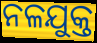
ନଳଯୁକ୍ତ